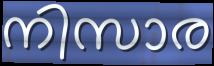
നിസാര